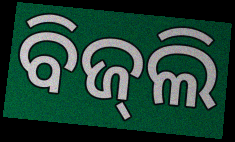
ବିଜ୍‍ଲି